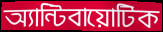
অ্যান্টিবায়োটিক